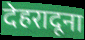
देहरादूना